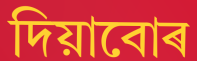
দিয়াবোৰ